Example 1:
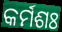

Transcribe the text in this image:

କର୍ମଶଃ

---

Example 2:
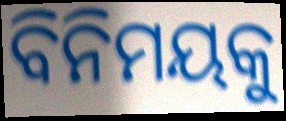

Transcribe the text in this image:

ବିନିମୟକୁ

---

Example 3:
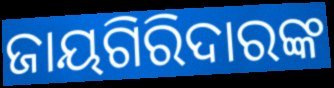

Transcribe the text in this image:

ଜାୟଗିରିଦାରଙ୍କ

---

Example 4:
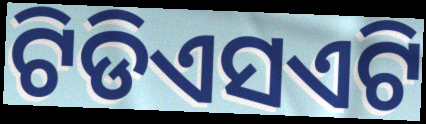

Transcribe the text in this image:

ଟିଡିଏସଏଟି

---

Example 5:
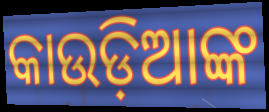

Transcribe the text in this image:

କାଉଡ଼ିଆଙ୍କ